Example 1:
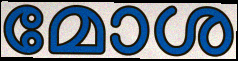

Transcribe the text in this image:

മോശ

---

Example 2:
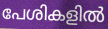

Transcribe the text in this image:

പേശികളിൽ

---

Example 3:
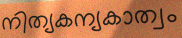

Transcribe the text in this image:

നിത്യകന്യകാത്വം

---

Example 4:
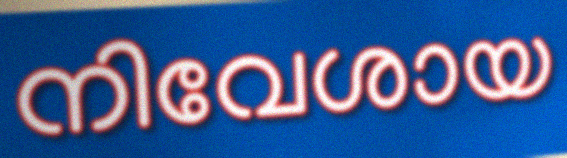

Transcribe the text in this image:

നിവേശായ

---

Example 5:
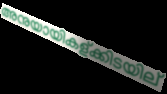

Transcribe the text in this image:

അനുയായികള്ക്കിടയില്